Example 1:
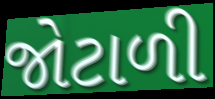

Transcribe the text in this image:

જોટાળી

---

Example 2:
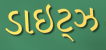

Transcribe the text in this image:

ડાઇટ્ઝ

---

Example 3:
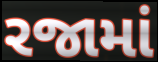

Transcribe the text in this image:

રજામાં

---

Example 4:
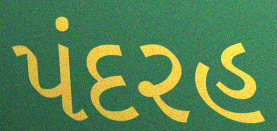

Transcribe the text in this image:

પંદરહ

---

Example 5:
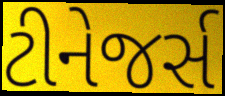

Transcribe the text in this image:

ટીનેજર્સ